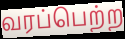
வரப்பெற்ற